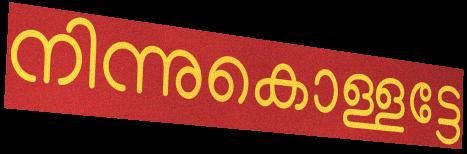
നിന്നുകൊള്ളട്ടേ